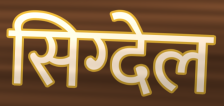
सिग्देल